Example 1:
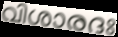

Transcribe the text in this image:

വിശാരദഃ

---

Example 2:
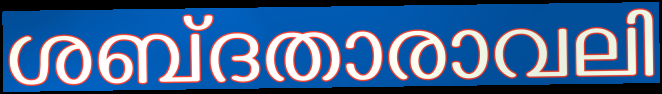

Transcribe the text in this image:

ശബ്‌ദതാരാവലി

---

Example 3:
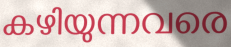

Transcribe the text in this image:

കഴിയുന്നവരെ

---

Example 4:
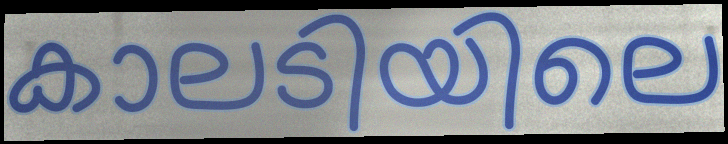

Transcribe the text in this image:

കാലടിയിലെ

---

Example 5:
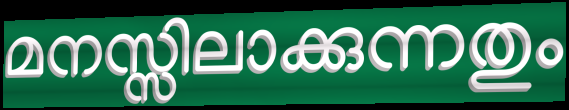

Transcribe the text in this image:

മനസ്സിലാക്കുന്നതും